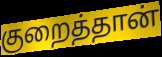
குறைத்தான்